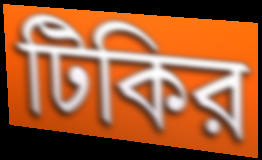
টিকির